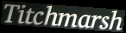
Titchmarsh